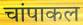
चांपाकल